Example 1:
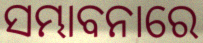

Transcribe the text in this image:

ସମ୍ଭାବନାରେ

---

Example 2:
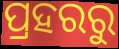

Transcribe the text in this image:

ପ୍ରହରରୁ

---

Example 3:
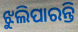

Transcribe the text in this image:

ଝୁଲିପାରନ୍ତି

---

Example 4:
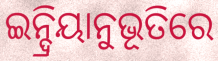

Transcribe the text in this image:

ଇନ୍ଦ୍ରିୟାନୁଭୂତିରେ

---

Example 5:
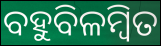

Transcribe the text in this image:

ବହୁବିଳମ୍ବିତ